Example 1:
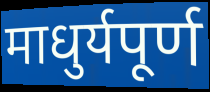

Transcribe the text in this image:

माधुर्यपूर्ण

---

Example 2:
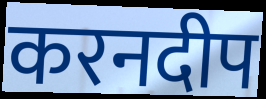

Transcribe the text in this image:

करनदीप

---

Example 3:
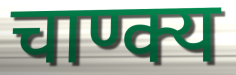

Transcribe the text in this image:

चाण्क्य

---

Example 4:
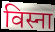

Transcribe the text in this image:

विस्ना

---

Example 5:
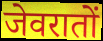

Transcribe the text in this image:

जेवरातों